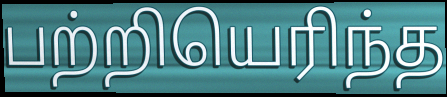
பற்றியெரிந்த